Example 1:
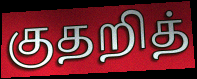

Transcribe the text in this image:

குதறித்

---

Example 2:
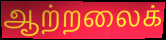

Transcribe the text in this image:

ஆற்றலைக்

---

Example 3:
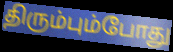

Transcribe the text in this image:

திரும்பும்போது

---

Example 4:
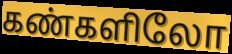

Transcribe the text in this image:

கண்களிலோ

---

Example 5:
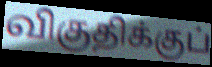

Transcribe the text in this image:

விகுதிக்குப்